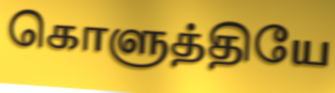
கொளுத்தியே